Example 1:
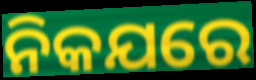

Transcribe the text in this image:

ନିକଯରେ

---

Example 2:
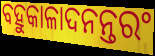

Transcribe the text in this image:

ବହୁକାଳାଦନନ୍ତରଂ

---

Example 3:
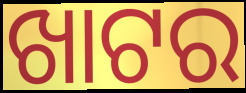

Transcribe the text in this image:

ଖାଟର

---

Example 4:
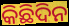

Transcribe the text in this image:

କିଛିଦିନ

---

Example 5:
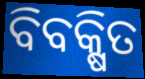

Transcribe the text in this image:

ବିବକ୍ଷିତ